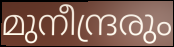
മുനീന്ദ്രരും